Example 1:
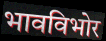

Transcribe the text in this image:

भावविभोर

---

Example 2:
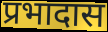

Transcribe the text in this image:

प्रभादास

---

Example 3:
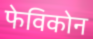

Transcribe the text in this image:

फेविकोन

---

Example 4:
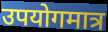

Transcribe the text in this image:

उपयोगमात्र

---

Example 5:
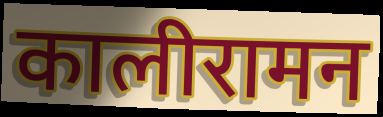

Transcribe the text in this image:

कालीरामन